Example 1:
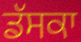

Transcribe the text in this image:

ਡੱਸਕਾ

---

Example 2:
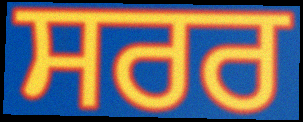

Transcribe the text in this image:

ਸਰਰ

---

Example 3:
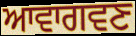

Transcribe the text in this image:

ਆਵਾਗਵਣ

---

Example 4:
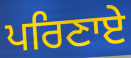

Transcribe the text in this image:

ਪਰਿਣਾਏ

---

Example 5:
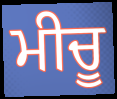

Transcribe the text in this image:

ਮੀਚੂ